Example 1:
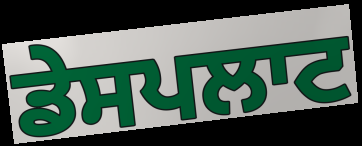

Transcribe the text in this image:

ਡੇਸਪਲਾਟ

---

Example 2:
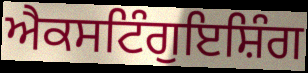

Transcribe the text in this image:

ਐਕਸਟਿੰਗੁਇਸ਼ਿੰਗ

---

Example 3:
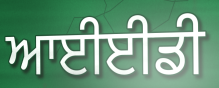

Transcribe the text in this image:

ਆਈਈਡੀ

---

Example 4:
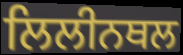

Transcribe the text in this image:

ਲਿਲੀਨਥਲ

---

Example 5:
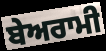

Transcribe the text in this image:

ਬੇਅਰਾਮੀ